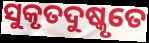
ସୁକୃତଦୁଷ୍କୃତେ